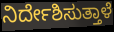
ನಿರ್ದೇಶಿಸುತ್ತಾಳೆ